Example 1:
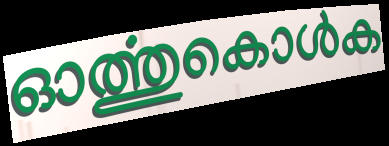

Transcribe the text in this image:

ഓൎത്തുകൊൾക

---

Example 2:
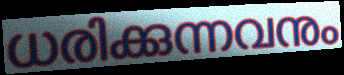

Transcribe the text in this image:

ധരിക്കുന്നവനും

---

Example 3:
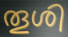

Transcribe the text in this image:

തൂശി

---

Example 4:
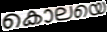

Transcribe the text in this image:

കൊലയെ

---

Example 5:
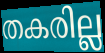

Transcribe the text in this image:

തകരില്ല